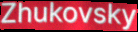
Zhukovsky